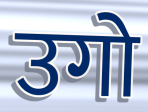
उगो